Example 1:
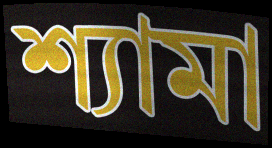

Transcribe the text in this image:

শ্যামা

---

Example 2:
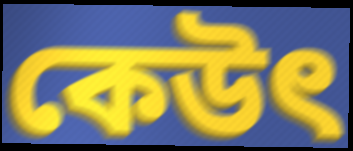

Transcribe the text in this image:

কেউৎ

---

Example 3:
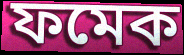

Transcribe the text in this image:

ফমেক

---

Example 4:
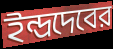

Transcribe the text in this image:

ইন্দ্রদেবের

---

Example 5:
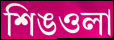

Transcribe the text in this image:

শিঙওলা